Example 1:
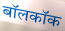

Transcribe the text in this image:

बॉलकॉक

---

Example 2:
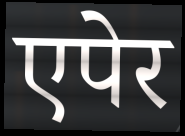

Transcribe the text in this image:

एपेर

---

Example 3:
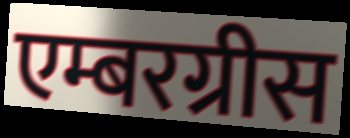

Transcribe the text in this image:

एम्बरग्रीस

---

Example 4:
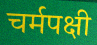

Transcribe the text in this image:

चर्मपक्षी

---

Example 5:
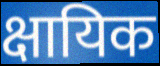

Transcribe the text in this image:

क्षायिक